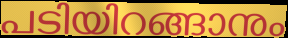
പടിയിറങ്ങാനും